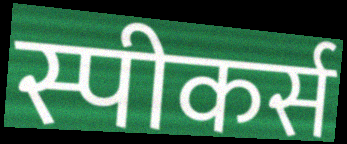
स्पीकर्स